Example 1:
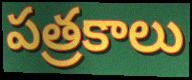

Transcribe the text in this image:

పత్రకాలు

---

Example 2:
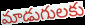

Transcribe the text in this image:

మాడుగులకు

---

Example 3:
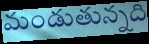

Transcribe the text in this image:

మండుతున్నది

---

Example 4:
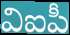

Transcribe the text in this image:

విఐపీ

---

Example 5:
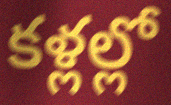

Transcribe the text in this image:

కళ్లల్లో